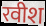
रवीश